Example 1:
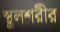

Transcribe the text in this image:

স্থূলশরীর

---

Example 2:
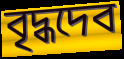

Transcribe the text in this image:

বৃদ্ধদেব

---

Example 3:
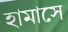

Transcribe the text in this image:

হামাসে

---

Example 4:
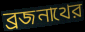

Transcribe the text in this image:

ব্রজনাথের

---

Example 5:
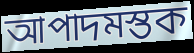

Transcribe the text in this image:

আপাদমস্তক